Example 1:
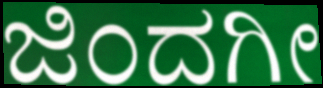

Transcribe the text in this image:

ಜಿಂದಗೀ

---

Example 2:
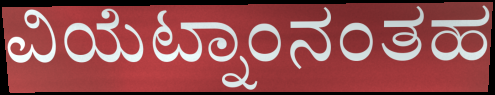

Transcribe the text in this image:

ವಿಯೆಟ್ನಾಂನಂತಹ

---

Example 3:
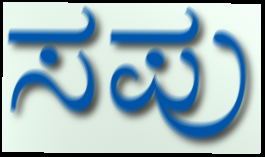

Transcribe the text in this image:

ಸಪು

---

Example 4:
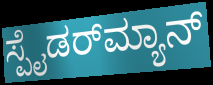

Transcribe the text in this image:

ಸ್ಪೈಡರ್‌ಮ್ಯಾನ್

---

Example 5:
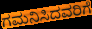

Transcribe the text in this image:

ಗಮನಿಸಿದವರಿಗೆ